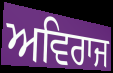
ਅਵਿਰਾਜ